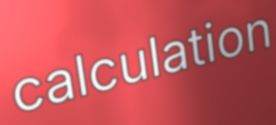
calculation